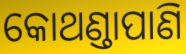
କୋଥଣ୍ଡାପାଣି